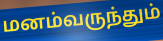
மனம்வருந்தும்